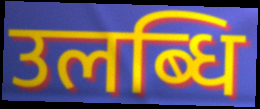
उलब्धि